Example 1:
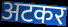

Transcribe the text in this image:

अटकर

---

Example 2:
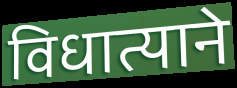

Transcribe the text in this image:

विधात्याने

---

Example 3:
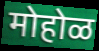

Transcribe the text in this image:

मोहोळ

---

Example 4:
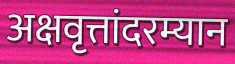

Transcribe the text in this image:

अक्षवृत्तांदरम्यान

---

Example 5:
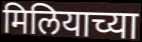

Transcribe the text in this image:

मिलियाच्या